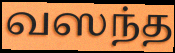
வஸந்த